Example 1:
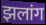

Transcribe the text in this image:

झलांग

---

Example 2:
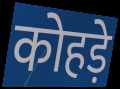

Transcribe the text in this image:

कोहड़े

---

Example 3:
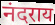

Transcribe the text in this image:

नंदराय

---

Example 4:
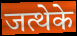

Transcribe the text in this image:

जत्थेके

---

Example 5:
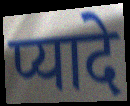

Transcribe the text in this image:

प्यादे